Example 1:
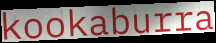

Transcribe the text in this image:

kookaburra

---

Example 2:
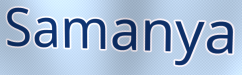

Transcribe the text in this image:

Samanya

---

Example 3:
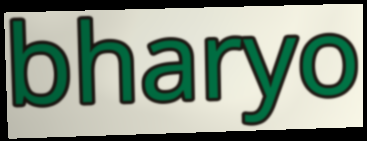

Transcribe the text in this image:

bharyo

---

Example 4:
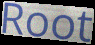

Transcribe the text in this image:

Root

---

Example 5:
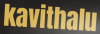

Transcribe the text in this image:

kavithalu